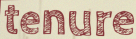
tenure